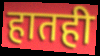
हातही